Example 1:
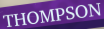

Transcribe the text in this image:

THOMPSON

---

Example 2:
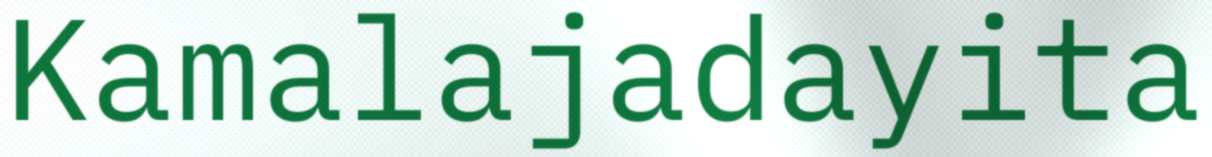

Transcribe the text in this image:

Kamalajadayita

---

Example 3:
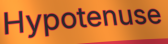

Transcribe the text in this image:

Hypotenuse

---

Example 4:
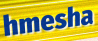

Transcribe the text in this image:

hmesha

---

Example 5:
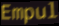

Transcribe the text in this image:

Empul